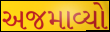
અજમાવ્યો